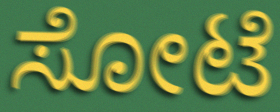
ಸೋಟೆ